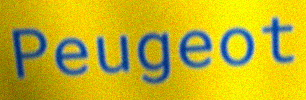
Peugeot